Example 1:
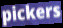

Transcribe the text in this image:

pickers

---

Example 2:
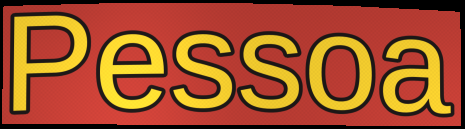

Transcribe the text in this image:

Pessoa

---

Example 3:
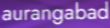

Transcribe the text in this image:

aurangabad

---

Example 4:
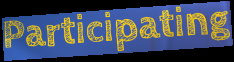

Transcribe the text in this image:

Participating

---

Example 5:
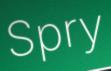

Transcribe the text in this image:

Spry